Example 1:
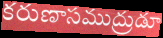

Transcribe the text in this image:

కరుణాసముద్రుడూ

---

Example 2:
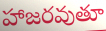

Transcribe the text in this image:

హాజరవుతూ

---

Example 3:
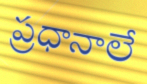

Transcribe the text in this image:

ప్రధానాలే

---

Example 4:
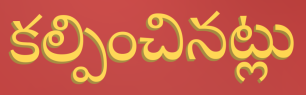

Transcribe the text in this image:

కల్పించినట్లు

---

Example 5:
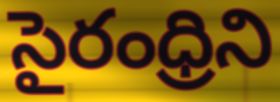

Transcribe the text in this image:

సైరంధ్రిని